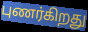
புணர்கிறது